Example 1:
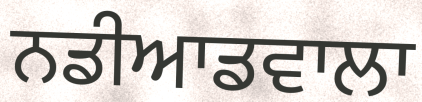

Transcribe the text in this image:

ਨਡੀਆਡਵਾਲਾ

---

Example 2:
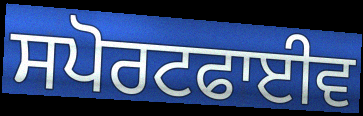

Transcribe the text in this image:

ਸਪੋਰਟਫਾਈਵ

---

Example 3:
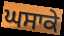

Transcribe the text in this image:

ਘਸਾਕੇ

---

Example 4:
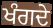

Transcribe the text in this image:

ਖੰਗਦੇ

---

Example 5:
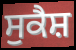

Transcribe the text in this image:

ਸੁਕੈਸ਼